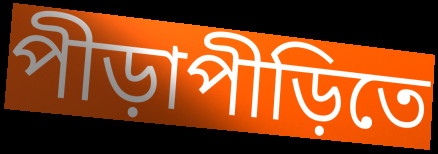
পীড়াপীড়িতে